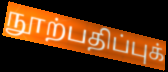
நூற்பதிப்புக்